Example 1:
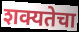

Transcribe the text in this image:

शक्यतेचा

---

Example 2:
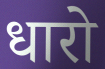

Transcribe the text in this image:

धारो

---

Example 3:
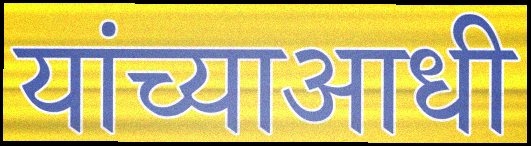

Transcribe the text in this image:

यांच्याआधी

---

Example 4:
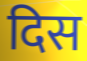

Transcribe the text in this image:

दिस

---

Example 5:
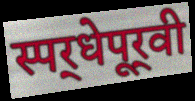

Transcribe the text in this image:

स्पर्धेपूर्वी